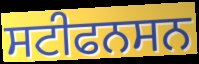
ਸਟੀਫਨਸਨ